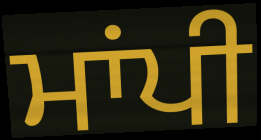
ਮਾਂਪੀ